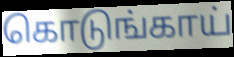
கொடுங்காய்